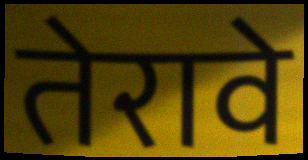
तेरावे